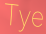
Tye